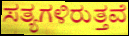
ಸತ್ಯಗಳಿರುತ್ತವೆ